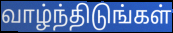
வாழ்ந்திடுங்கள்